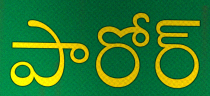
పారోర్